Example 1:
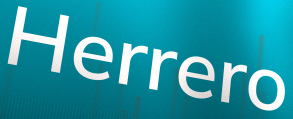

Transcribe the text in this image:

Herrero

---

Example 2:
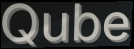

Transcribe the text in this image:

Qube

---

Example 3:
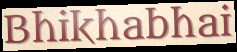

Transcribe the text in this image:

Bhikhabhai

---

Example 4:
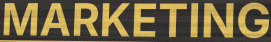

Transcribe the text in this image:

MARKETING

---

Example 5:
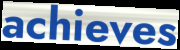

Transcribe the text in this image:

achieves